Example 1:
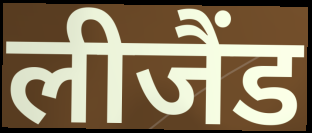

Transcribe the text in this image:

लीजैंड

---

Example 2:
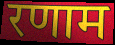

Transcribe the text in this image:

रणाम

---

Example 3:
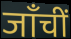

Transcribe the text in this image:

जाँचीं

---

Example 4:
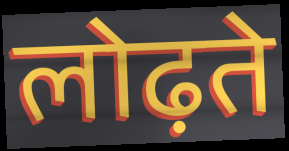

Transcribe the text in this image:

लोढ़ते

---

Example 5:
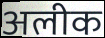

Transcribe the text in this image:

अलीक